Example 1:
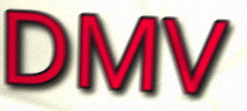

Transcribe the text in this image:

DMV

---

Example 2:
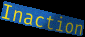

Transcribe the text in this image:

Inaction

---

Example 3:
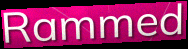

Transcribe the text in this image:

Rammed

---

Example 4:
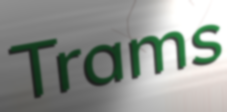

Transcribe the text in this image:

Trams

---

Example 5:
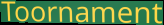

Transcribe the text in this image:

Toornament